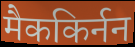
मैककिर्नन